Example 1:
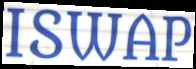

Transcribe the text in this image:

ISWAP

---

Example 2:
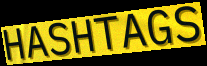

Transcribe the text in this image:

HASHTAGS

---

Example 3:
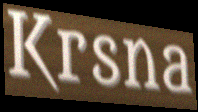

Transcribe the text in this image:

Krsna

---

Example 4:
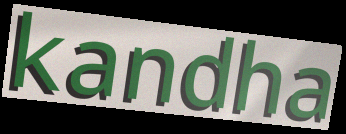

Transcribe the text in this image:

kandha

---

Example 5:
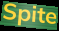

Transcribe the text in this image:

Spite